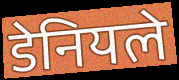
डेनियले